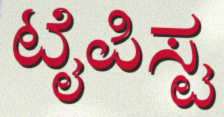
ಟೈಪಿಸ್ಟ